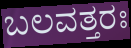
ಬಲವತ್ತರಃ